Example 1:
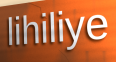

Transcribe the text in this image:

lihiliye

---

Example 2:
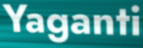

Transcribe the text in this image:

Yaganti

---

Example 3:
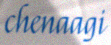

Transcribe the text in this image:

chenaagi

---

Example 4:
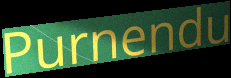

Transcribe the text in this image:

Purnendu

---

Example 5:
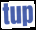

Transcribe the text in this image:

tup